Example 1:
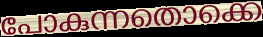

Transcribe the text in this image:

പോകുന്നതൊക്കെ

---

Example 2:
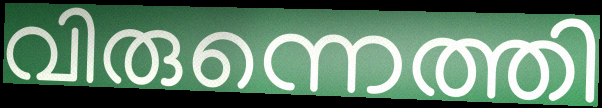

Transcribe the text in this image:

വിരുന്നെത്തി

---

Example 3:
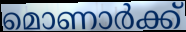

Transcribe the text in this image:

മൊണാർക്ക്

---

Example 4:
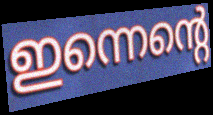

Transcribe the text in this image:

ഇന്നെന്റെ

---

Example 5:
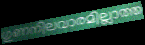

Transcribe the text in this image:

ഗുണനിലവാരമില്ലാത്ത